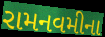
રામનવમીના